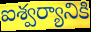
ఐశ్వర్యానికి